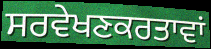
ਸਰਵੇਖਣਕਰਤਾਵਾਂ